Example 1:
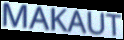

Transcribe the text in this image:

MAKAUT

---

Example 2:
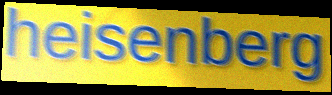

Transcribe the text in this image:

heisenberg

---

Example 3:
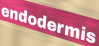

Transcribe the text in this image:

endodermis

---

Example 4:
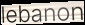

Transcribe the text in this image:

lebanon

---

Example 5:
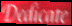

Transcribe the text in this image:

Dedicate